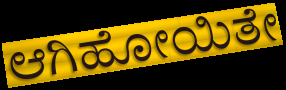
ಆಗಿಹೋಯಿತೇ